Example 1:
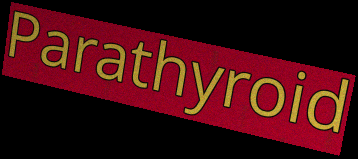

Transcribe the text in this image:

Parathyroid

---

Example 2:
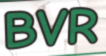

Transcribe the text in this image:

BVR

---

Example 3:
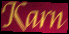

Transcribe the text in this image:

Karn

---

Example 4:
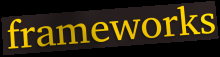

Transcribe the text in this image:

frameworks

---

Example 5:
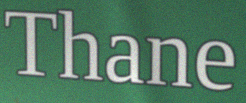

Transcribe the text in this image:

Thane